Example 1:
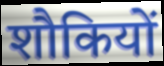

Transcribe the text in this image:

शौकियों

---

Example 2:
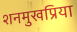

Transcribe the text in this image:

शनमुखप्रिया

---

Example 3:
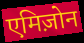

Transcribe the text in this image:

एमिज़ोन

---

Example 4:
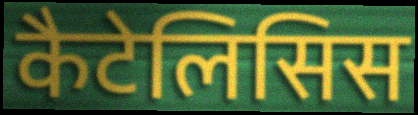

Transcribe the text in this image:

कैटेलिसिस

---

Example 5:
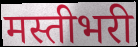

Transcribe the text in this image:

मस्तीभरी